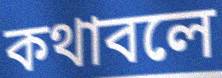
কথাবলে